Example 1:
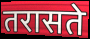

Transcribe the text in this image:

तरासते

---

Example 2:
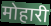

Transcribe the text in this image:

मोहारी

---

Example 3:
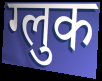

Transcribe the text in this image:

ग्लुक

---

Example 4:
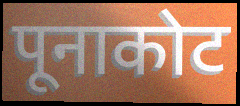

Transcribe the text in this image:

पूनाकोट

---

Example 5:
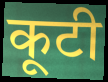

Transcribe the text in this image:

कूटी